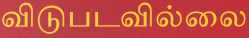
விடுபடவில்லை